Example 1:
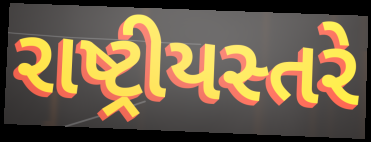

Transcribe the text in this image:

રાષ્ટ્રીયસ્તરે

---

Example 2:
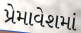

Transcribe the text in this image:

પ્રેમાવેશમાં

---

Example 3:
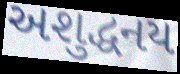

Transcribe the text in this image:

અશુદ્ધનય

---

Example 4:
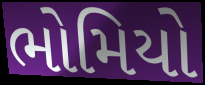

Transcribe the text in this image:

ભોમિયો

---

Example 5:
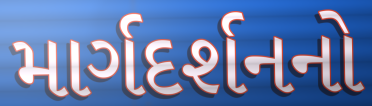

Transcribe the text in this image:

માર્ગદર્શનનો